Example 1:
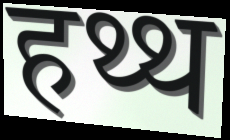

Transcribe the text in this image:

हथ्थ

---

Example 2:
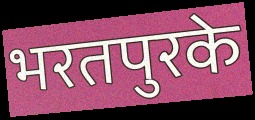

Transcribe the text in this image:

भरतपुरके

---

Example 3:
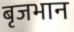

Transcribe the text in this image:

बृजभान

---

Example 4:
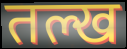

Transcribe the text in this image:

तल्‍ख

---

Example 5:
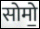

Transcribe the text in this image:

सोमो॒